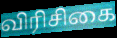
விரிசிகை